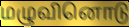
மழுவினொடு